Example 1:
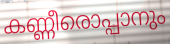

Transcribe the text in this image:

കണ്ണീരൊപ്പാനും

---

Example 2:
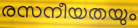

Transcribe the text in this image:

രസനീയതയും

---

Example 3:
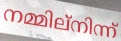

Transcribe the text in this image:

നമ്മില്നിന്ന്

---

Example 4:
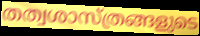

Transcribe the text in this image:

തത്വശാസ്ത്രങ്ങളുടെ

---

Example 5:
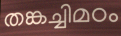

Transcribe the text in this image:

തങ്കച്ചിമഠം